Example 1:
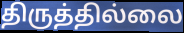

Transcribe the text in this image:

திருத்தில்லை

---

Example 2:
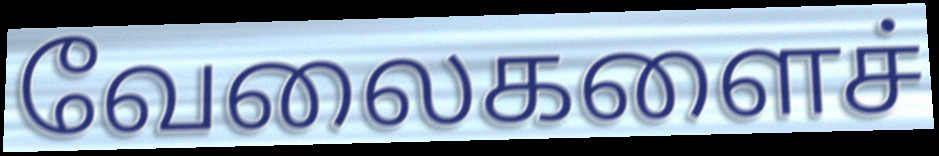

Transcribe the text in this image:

வேலைகளைச்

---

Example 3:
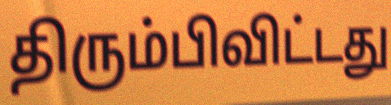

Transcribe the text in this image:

திரும்பிவிட்டது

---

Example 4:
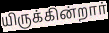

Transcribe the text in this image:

யிருக்கின்றார்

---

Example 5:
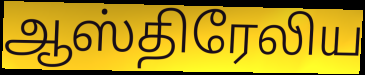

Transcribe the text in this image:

ஆஸ்திரேலிய